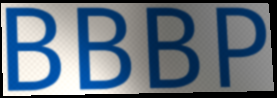
BBBP